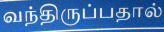
வந்திருப்பதால்